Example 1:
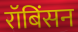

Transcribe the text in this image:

रॉबिंसन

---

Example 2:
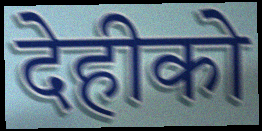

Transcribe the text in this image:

देहीको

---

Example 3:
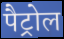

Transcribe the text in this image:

पैट्रोल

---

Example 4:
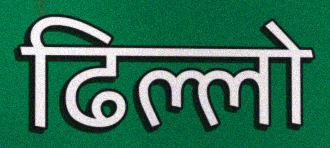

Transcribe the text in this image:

ढिल्लो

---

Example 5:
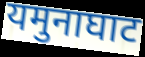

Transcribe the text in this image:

यमुनाघाट